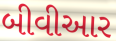
બીવીઆર